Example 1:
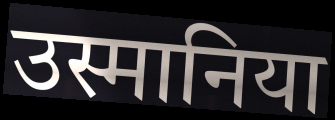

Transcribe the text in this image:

उस्मानिया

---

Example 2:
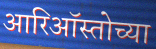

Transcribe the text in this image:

आरिऑस्तोच्या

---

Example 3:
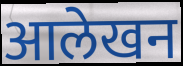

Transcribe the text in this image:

आलेखन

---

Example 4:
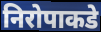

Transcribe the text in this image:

निरोपाकडे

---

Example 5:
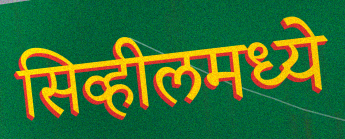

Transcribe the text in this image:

सिव्हीलमध्ये